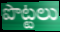
పొట్టలు